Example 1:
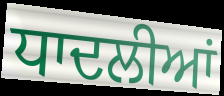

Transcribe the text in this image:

ਧਾਦਲੀਆਂ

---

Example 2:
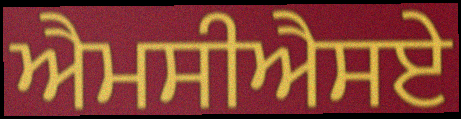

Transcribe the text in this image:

ਐਮਸੀਐਸਏ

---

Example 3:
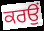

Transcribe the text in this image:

ਕਰਉਂ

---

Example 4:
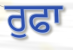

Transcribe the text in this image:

ਰੁਫਾ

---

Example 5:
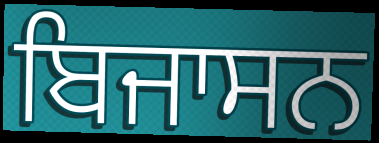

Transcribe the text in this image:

ਬਿਜਾਸਨ